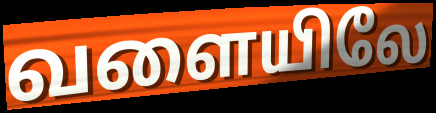
வளையிலே